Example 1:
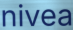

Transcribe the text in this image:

nivea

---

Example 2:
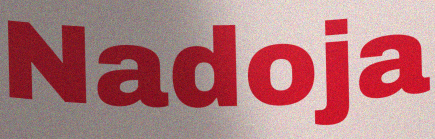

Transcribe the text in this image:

Nadoja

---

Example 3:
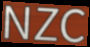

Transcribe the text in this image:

NZC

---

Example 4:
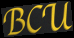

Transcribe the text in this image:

BCU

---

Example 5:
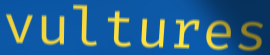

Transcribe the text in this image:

vultures